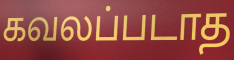
கவலப்படாத